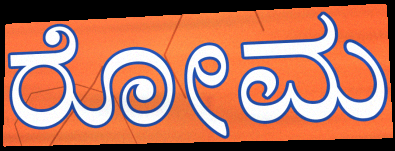
ರೋಮ